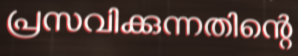
പ്രസവിക്കുന്നതിന്റെ